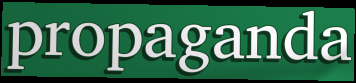
propaganda